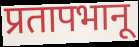
प्रतापभानू